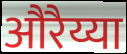
औरैय्या